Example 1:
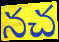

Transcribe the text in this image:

నచ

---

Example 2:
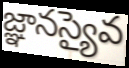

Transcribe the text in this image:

జ్ఞానస్యైవ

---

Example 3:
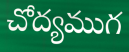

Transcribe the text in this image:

చోద్యముగ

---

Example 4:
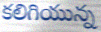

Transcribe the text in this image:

కలిగియున్న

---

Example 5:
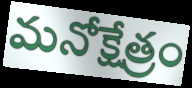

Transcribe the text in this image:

మనోక్షేత్రం